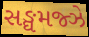
સઙ્ઘમજ્ઝે